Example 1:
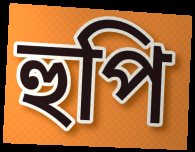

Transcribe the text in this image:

হুপি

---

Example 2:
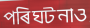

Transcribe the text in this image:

পৰিঘটনাও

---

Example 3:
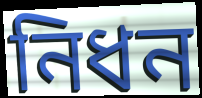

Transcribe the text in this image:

নিধন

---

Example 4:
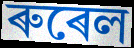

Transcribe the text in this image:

ৰুৰেল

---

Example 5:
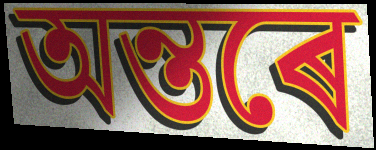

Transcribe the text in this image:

অন্তৰে